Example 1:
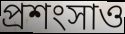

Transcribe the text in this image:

প্রশংসাও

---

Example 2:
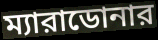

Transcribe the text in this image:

ম্যারাডোনার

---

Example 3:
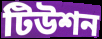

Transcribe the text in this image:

টিউশন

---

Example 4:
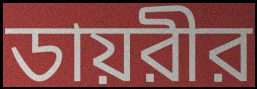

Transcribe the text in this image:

ডায়রীর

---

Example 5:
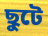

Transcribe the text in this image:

ছুটে